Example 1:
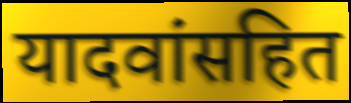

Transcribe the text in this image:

यादवांसहित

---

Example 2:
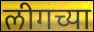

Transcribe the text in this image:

लीगच्या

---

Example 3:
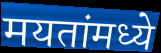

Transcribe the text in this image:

मयतांमध्ये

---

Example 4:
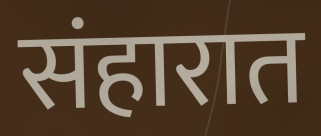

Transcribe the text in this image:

संहारात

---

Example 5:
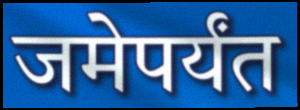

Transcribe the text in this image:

जमेपर्यंत